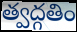
త్వద్గతిం